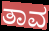
ತಾವ